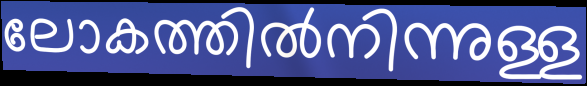
ലോകത്തിൽനിന്നുള്ള